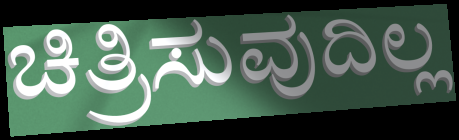
ಚಿತ್ರಿಸುವುದಿಲ್ಲ